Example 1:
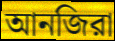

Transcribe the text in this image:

আনজিরা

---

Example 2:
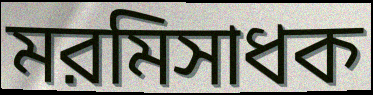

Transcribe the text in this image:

মরমিসাধক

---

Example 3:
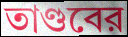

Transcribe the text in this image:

তাণ্ডবের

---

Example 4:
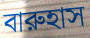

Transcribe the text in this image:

বারুহাস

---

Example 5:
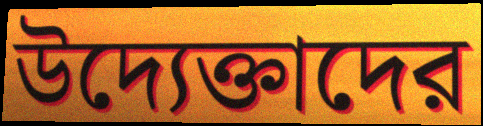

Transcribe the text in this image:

উদ্যেক্তাদের